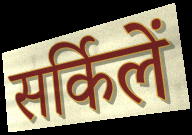
सर्किलें